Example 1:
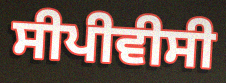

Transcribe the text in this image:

ਸੀਪੀਵੀਸੀ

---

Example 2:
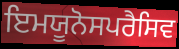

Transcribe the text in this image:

ਇਮਯੂਨੋਸਪਰੈਸਿਵ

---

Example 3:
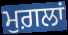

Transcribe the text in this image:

ਮੁਗ਼ਲਾਂ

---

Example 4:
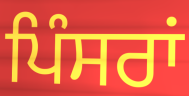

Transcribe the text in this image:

ਪਿੰਸਰਾਂ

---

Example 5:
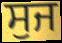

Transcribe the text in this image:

ਸੁਜ